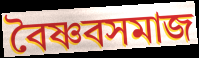
বৈষ্ণবসমাজ